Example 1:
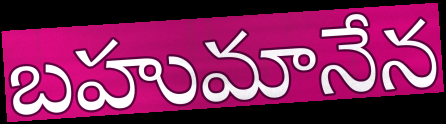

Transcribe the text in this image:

బహుమానేన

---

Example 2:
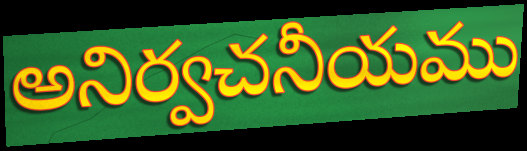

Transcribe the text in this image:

అనిర్వచనీయము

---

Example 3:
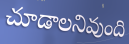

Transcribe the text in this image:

చూడాలనివుంది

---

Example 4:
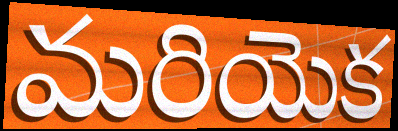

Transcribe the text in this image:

మరియెక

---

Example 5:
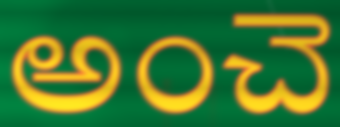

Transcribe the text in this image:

అంచె